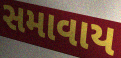
સમાવાય